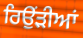
ਰਿਉਂੜੀਆਂ